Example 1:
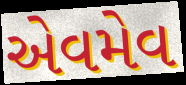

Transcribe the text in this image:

એવમેવ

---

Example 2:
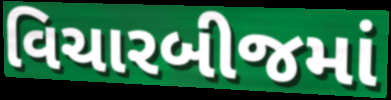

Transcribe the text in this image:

વિચારબીજમાં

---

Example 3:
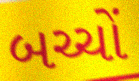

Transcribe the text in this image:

બચ્ચોં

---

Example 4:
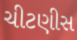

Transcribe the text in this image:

ચીટણીસ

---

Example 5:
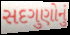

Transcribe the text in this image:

સદગુણોનું